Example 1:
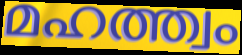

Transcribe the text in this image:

മഹത്ത്വം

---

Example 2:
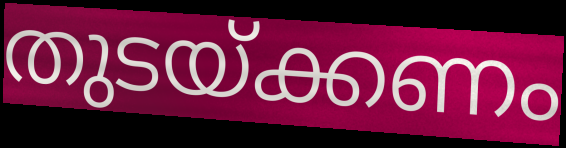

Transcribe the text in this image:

തുടയ്ക്കണം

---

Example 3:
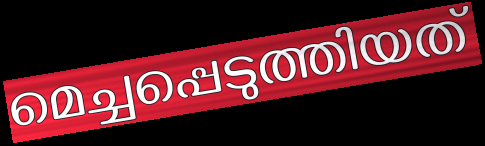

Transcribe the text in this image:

മെച്ചപ്പെടുത്തിയത്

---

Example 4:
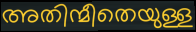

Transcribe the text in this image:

അതിന്മീതെയുള്ള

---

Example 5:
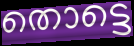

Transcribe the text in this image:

തൊട്ടെ